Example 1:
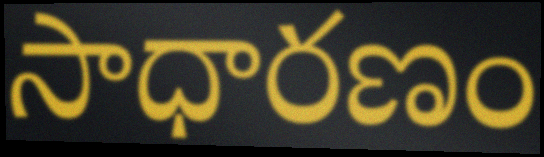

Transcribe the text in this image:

సాధారణం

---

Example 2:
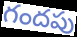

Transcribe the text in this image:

గందపు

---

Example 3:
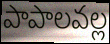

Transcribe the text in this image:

పాపాలవల్ల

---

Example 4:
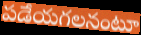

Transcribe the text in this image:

పడేయగలనంటూ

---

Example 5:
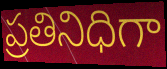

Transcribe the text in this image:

ప్రతినిధిగా